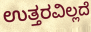
ಉತ್ತರವಿಲ್ಲದೆ